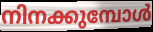
നിനക്കുമ്പോൾ